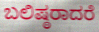
ಬಲಿಷ್ಠರಾದರೆ